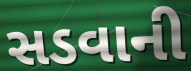
સડવાની